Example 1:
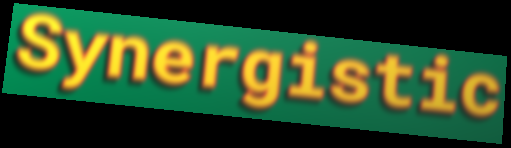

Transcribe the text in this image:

Synergistic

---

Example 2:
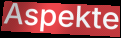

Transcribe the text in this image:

Aspekte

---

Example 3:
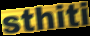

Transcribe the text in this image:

sthiti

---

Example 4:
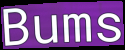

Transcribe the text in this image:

Bums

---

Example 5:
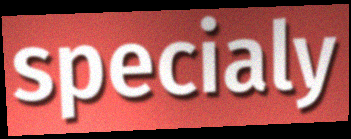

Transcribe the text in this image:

specialy